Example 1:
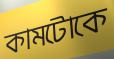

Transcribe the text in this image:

কামটোকে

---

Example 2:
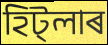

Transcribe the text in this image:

হিট্‌লাৰ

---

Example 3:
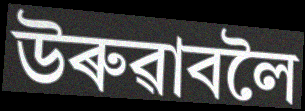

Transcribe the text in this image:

উৰুৱাবলৈ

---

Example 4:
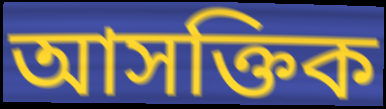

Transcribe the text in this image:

আসক্তিক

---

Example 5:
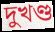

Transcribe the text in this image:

দুখণ্ড